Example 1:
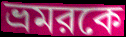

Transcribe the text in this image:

ভ্রমরকে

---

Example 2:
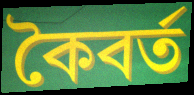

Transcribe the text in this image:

কৈবর্ত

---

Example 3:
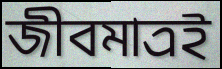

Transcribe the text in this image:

জীবমাত্রই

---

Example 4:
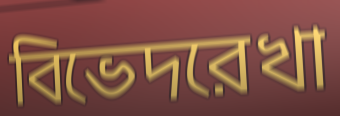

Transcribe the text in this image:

বিভেদরেখা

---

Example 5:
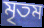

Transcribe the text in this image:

মৃতম